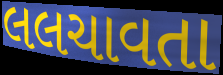
લલચાવતા